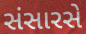
સંસારસે